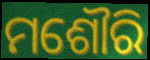
ମଶୌରି